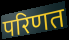
परिणत